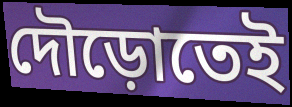
দৌড়োতেই